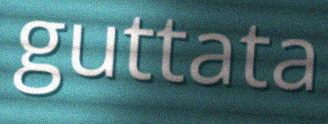
guttata